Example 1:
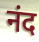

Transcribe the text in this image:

नंद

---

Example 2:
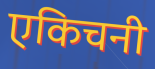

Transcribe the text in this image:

एकिचनी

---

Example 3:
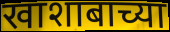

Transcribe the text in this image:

खाशाबाच्या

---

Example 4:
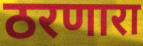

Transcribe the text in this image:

ठरणारा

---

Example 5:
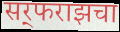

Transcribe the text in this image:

सर्फराझचा